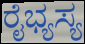
ರೈಭ್ಯಸ್ಯ